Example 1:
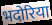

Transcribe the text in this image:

भदोरिया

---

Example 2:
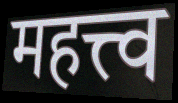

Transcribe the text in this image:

महत्त्व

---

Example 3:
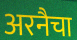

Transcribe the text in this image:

अरनैचा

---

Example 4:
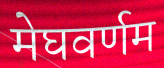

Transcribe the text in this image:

मेघवर्णम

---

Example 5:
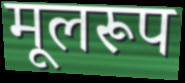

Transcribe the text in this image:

मूलरूप